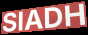
SIADH